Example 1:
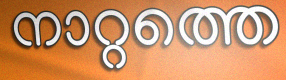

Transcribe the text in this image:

നാറ്റത്തെ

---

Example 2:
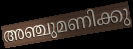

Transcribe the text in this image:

അഞ്ചുമണിക്കു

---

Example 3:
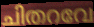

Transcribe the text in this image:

ചിതറവേ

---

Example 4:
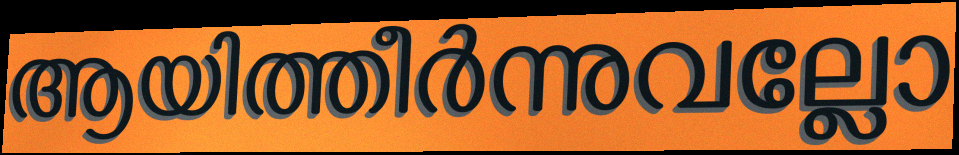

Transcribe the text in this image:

ആയിത്തീർന്നുവല്ലോ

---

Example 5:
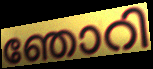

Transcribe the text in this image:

ഞോറി